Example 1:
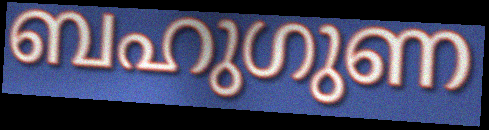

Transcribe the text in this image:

ബഹുഗുണ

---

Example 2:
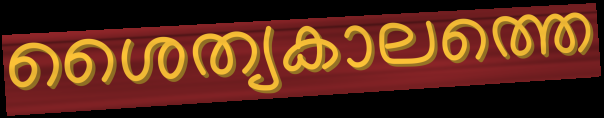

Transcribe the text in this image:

ശൈത്യകാലത്തെ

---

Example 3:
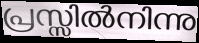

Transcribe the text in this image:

പ്രസ്സിൽനിന്നു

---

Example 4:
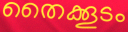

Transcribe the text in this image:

തൈക്കൂടം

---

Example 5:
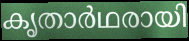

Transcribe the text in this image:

കൃതാർഥരായി